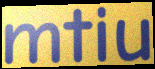
mtiu